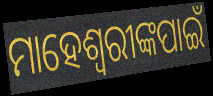
ମାହେଶ୍ୱରୀଙ୍କପାଇଁ